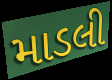
માડલી